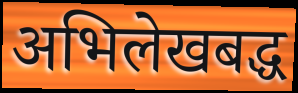
अभिलेखबद्ध